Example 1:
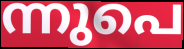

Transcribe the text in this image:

ന്നുപെ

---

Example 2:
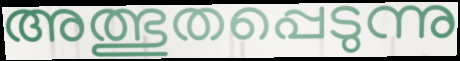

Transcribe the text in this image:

അത്ഭുതപ്പെടുന്നു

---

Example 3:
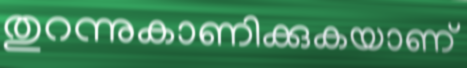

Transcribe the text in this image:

തുറന്നുകാണിക്കുകയാണ്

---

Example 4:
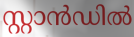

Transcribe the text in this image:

സ്റ്റാൻഡിൽ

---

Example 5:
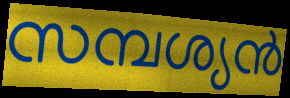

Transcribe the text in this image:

സമ്പശ്യൻ